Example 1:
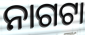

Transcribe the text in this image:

ନାଗଟା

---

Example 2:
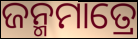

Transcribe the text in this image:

ଜନ୍ମମାତ୍ରେ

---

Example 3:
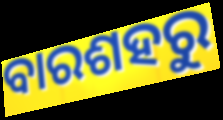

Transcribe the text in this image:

ବାରଶହରୁ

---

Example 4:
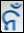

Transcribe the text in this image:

ନଁ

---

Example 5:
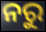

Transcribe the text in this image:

ନରୁ